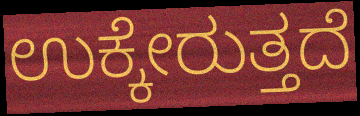
ಉಕ್ಕೇರುತ್ತದೆ